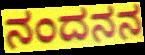
ನಂದನನ